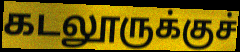
கடலூருக்குச்